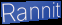
Rannit